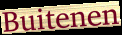
Buitenen